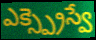
ఎక్స్ప్రెస్వే